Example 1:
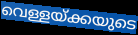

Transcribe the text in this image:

വെള്ളയ്ക്കയുടെ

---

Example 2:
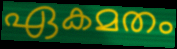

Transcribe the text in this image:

ഏകമതം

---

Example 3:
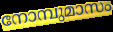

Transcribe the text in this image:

നോമ്പുമാസം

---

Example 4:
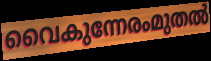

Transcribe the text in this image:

വൈകുന്നേരംമുതൽ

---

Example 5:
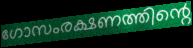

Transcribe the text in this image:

ഗോസംരക്ഷണത്തിന്റെ